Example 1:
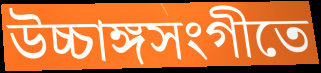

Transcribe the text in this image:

উচ্চাঙ্গসংগীতে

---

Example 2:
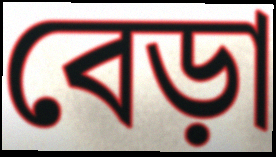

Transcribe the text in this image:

বেড়া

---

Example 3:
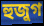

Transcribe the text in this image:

হুজুগ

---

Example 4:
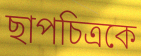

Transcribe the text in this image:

ছাপচিত্রকে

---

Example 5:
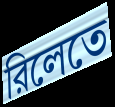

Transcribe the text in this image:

রিলেতে